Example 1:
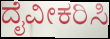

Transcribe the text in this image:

ದೈವೀಕರಿಸಿ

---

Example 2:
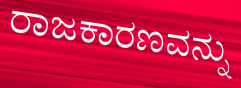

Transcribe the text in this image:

ರಾಜಕಾರಣವನ್ನು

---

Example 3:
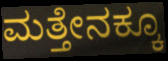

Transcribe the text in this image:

ಮತ್ತೇನಕ್ಕೂ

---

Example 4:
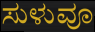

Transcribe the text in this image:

ಸುಳುವೂ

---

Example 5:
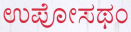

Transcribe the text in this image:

ಉಪೋಸಥಂ